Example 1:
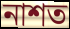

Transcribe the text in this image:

নাশত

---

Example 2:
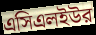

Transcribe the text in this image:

এসিএলইউর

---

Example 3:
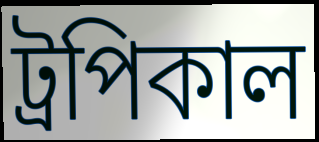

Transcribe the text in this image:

ট্রপিকাল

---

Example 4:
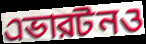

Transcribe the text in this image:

এভারটনও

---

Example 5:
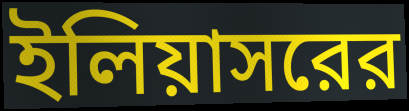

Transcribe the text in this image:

ইলিয়াসরের